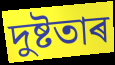
দুষ্টতাৰ